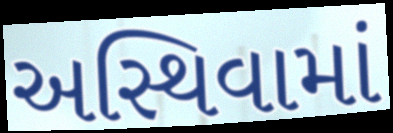
અસ્થિવામાં